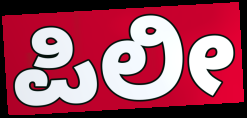
ಪಿಲೀ